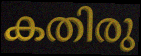
കതിരു